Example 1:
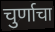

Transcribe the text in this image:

चुर्णाचा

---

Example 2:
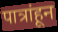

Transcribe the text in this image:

पात्रांहून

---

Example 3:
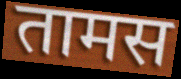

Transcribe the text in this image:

तामस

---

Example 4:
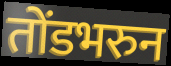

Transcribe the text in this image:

तोंडभरुन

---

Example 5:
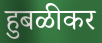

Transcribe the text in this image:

हुबळीकर